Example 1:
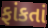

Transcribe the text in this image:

ફાંકતાં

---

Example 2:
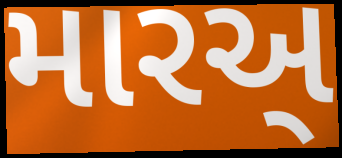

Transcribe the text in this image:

મારઅ્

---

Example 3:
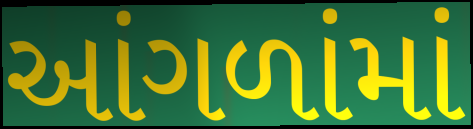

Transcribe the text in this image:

આંગળાંમાં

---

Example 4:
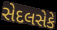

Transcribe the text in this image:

સેદલસેકે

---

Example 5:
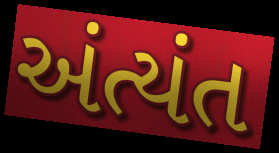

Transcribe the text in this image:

અંત્યંત